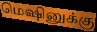
மெஷினுக்கு